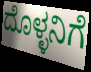
ದೊಳ್ಳನಿಗೆ